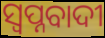
ସ୍ୱପ୍ନବାଦୀ